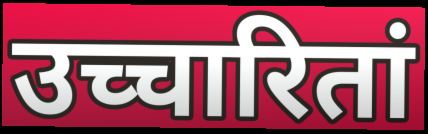
उच्चारितां